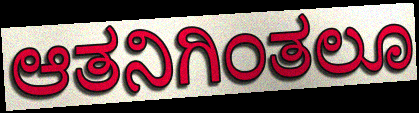
ಆತನಿಗಿಂತಲೂ